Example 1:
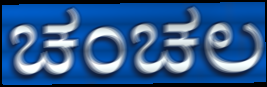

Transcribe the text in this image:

ಚಂಚಲ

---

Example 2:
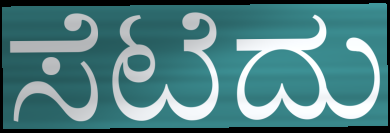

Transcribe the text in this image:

ಸೆಟೆದು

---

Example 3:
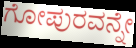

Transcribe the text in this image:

ಗೋಪುರವನ್ನೇ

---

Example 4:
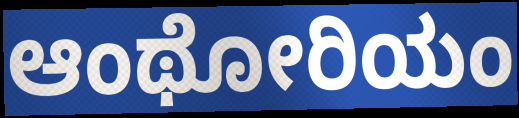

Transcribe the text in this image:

ಆಂಥೋರಿಯಂ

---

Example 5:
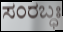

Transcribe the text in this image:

ಸಂರಬ್ಧಃ